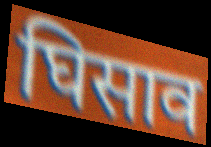
घिसाव